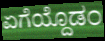
ಏಗೆಯ್ದೊಡಂ